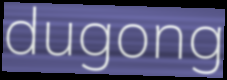
dugong